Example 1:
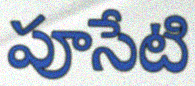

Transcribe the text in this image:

పూసేటి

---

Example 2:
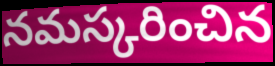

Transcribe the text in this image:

నమస్కరించిన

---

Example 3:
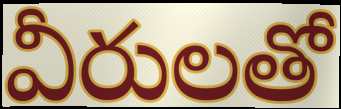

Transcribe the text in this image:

వీరులతో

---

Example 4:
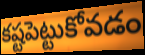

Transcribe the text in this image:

కష్టపెట్టుకోవడం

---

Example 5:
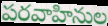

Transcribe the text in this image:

పరవాహినుల